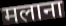
मलाना